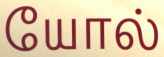
யோல்